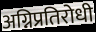
अग्निप्रतिरोधी